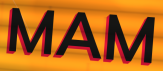
MAM